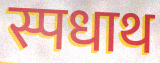
स्पधाथ